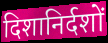
दिशानिर्दशों